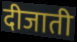
दीजाती